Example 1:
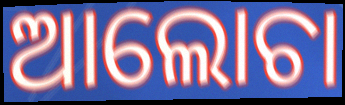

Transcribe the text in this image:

ଆଲୋଚା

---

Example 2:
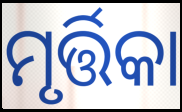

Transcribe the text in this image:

ମୃର୍ତ୍ତିକା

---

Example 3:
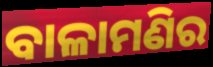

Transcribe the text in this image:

ବାଳାମଣିର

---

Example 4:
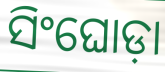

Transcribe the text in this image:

ସିଂଘୋଡ଼ା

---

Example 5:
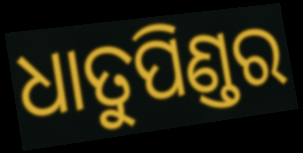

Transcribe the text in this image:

ଧାତୁପିଣ୍ଡର